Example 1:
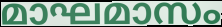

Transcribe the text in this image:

മാഘമാസം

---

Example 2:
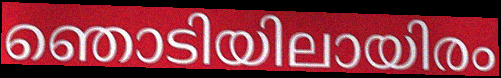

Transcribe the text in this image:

ഞൊടിയിലായിരം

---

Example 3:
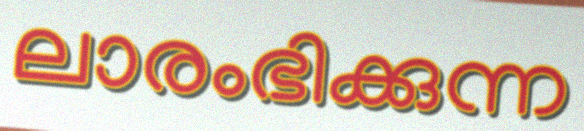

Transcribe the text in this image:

ലാരംഭിക്കുന്ന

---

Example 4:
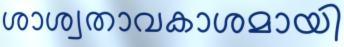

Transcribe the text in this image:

ശാശ്വതാവകാശമായി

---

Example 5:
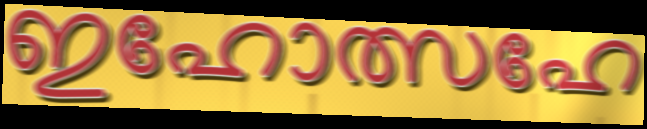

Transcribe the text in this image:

ഇഹോത്സഹേ